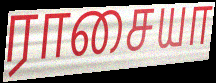
ராசையா